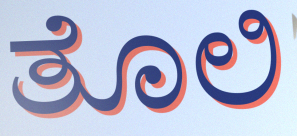
ತೊಲಿ